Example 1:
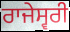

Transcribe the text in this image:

ਰਾਜੇਸ੍ਵਰੀ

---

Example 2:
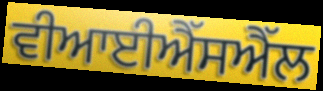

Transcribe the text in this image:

ਵੀਆਈਐੱਸਐੱਲ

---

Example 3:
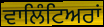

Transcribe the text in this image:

ਵਾਲਿੰਟਿਅਰਾਂ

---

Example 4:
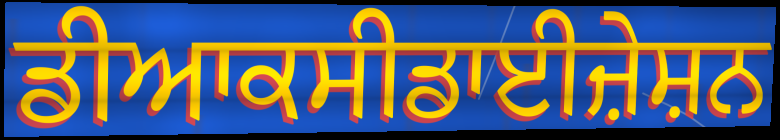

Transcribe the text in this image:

ਡੀਆਕਸੀਡਾਈਜ਼ੇਸ਼ਨ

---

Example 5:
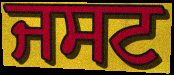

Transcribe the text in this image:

ਜਸਟ